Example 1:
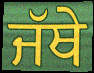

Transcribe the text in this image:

ਜੱਥੇ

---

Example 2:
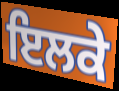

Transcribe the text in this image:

ਇਲਕੇ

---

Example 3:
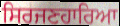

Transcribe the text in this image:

ਸਿਰਜਣਹਾਰਿਆ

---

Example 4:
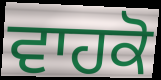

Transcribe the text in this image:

ਵਾਹਕੋ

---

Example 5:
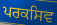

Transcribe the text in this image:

ਪਰਕਸਿਵ